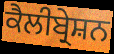
ਕੈਲੀਬ੍ਰੇਸ਼ਨ